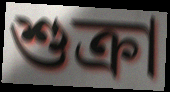
শুক্ৰা